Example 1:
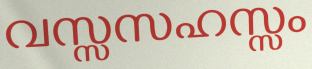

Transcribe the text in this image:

വസ്സസഹസ്സം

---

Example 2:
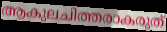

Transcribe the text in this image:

ആകുലചിത്തരാകരുത്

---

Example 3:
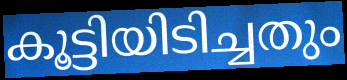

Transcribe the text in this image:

കൂട്ടിയിടിച്ചതും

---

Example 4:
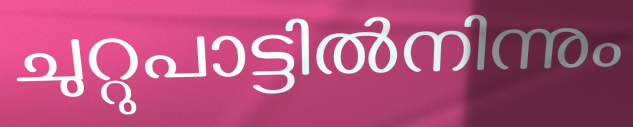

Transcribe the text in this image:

ചുറ്റുപാട്ടിൽനിന്നും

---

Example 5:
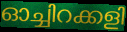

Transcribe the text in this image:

ഓച്ചിറക്കളി